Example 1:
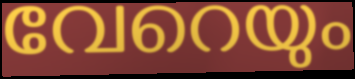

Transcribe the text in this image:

വേറെയും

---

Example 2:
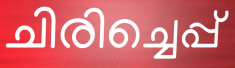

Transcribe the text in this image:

ചിരിച്ചെപ്പ്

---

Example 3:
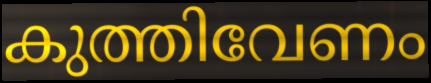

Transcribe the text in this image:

കുത്തിവേണം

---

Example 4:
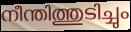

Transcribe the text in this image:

നീന്തിത്തുടിച്ചും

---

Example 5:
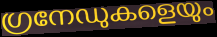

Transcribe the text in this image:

ഗ്രനേഡുകളെയും